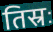
तिस्रः